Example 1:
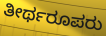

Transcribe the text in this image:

ತೀರ್ಥರೂಪರು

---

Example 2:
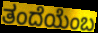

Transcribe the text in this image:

ತಂದೆಯೆಂಬ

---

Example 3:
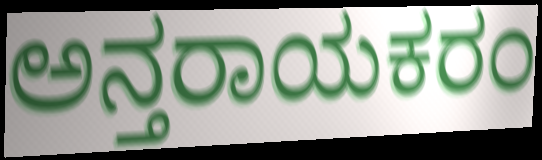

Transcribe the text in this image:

ಅನ್ತರಾಯಕರಂ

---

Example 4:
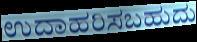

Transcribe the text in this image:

ಉದಾಹರಿಸಬಹುದು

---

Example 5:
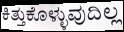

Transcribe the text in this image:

ಕಿತ್ತುಕೊಳ್ಳುವುದಿಲ್ಲ